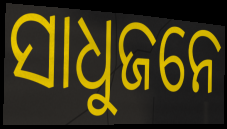
ସାଧୁଜନେ